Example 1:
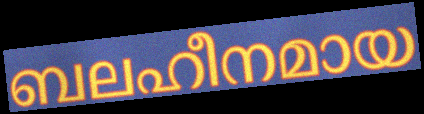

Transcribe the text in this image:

ബലഹീനമായ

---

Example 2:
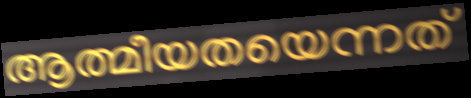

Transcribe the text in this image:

ആത്മീയതയെന്നത്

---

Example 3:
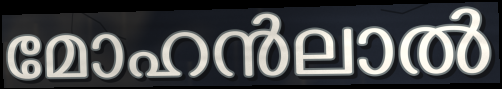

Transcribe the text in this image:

മോഹൻലാൽ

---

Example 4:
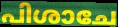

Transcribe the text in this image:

പിശാചേ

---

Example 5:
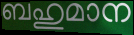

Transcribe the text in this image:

ബഹുമാന